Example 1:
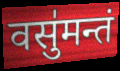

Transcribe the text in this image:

वसु॑मन्तं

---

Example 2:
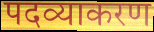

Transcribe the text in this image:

पदव्याकरण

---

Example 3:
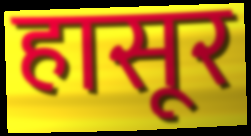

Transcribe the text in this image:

हासूर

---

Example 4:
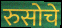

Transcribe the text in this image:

रुसोचे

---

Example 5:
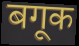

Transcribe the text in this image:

बगूक